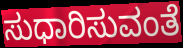
ಸುಧಾರಿಸುವಂತೆ